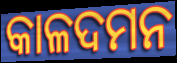
କାଳଦମନ